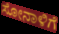
ಸೋನಾಳಿಗೆ